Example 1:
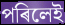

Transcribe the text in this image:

পৰিলেই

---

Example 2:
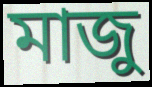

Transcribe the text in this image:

মাজু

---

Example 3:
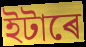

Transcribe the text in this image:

ইটাৰে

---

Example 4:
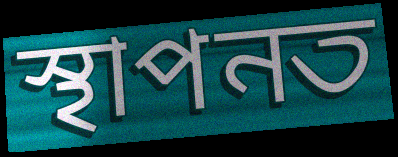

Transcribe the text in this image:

স্থাপনত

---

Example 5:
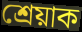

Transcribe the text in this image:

শ্ৰেয়াক